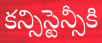
కన్సిస్టెన్సీకి